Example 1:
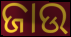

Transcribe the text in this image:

ଜାଉ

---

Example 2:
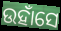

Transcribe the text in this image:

ଉହାଁସେ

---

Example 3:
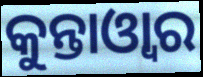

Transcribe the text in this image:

କୁନ୍ତାଓ୍ୱାର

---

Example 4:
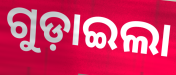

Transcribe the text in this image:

ଗୁଡ଼ାଇଲା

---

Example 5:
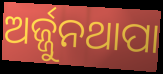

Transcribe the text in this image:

ଅର୍ଜ୍ଜୁନଥାପା